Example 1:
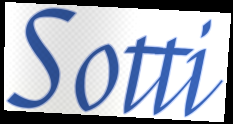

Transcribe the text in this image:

Sotti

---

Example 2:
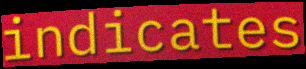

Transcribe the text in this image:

indicates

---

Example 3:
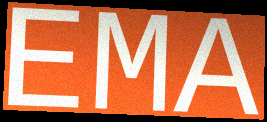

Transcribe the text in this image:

EMA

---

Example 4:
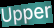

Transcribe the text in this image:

Upper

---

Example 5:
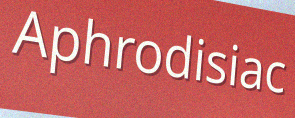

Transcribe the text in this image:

Aphrodisiac